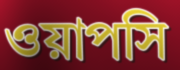
ওয়াপসি